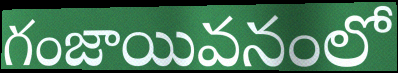
గంజాయివనంలో